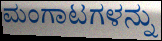
ಮಂಗಾಟಗಳನ್ನು